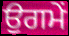
ਉਗਮੇਂ